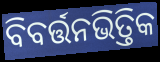
ବିବର୍ତ୍ତନଭିତ୍ତିକ